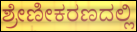
ಶ್ರೇಣೀಕರಣದಲ್ಲಿ